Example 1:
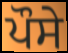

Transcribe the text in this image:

ਪੌਸੇ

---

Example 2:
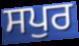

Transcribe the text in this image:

ਸਪੁਰ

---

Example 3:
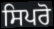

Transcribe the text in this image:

ਸਿਪਰੋ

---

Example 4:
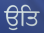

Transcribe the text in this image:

ਉਤਿ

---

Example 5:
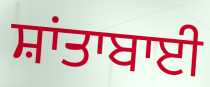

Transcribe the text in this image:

ਸ਼ਾਂਤਾਬਾਈ